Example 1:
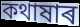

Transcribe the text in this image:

কথাষাৰ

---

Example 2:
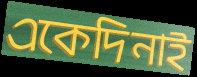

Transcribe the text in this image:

একেদিনাই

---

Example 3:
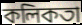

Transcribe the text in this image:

কলিকতা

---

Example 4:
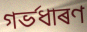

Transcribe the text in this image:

গৰ্ভধাৰণ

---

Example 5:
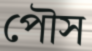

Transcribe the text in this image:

পৌস